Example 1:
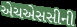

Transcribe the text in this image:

એચએસસીની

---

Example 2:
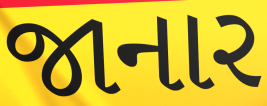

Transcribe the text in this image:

જાનાર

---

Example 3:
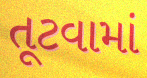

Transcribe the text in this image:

તૂટવામાં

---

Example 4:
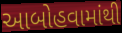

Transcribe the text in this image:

આબોહવામાંથી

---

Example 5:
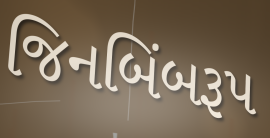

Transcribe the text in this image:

જિનબિંબરૂપ